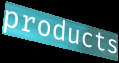
products